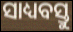
ସାଧ୍ୟବସ୍ତୁ